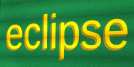
eclipse